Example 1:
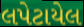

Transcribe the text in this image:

લપેટાયેલ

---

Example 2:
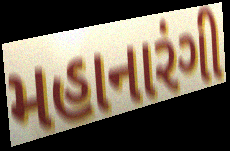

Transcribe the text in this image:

મહાનારંગી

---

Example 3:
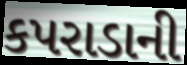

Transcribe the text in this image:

કપરાડાની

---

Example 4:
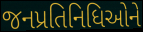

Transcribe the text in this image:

જનપ્રતિનિધિઓને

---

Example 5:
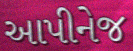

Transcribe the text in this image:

આપીનેજ